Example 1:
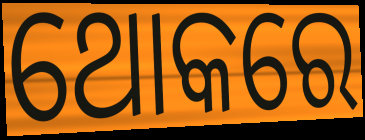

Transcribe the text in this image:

ଥୋକରେ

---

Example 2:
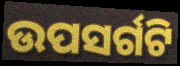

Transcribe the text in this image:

ଉପସର୍ଗଟି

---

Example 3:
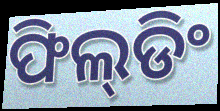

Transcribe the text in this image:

ଫିଲ୍‌ଡିଂ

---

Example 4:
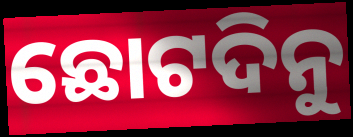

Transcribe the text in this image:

ଛୋଟଦିନୁ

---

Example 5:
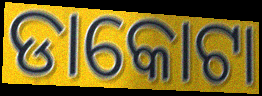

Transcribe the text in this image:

ଡାକୋଟା